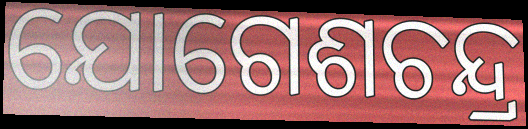
ଯୋଗେଶଚନ୍ଦ୍ର